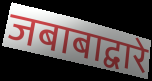
जबाबाद्वारे